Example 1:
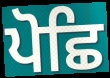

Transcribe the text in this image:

ਪੋਛਿ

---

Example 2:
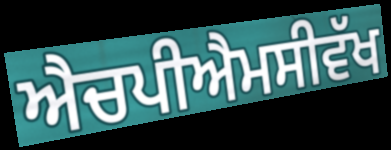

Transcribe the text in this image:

ਐਚਪੀਐਮਸੀਵੱਖ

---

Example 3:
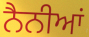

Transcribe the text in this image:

ਨੈਨੀਆਂ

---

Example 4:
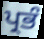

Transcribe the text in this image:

ਪ੍ਰਭੰ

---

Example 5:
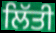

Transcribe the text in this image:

ਲਿੱਤੀ